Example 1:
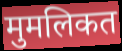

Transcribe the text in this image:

मुमलिकत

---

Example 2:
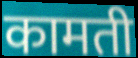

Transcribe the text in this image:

कामती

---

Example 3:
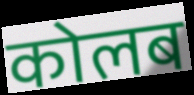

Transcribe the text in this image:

कोलब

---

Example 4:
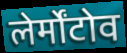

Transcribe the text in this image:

लेर्मोंटोव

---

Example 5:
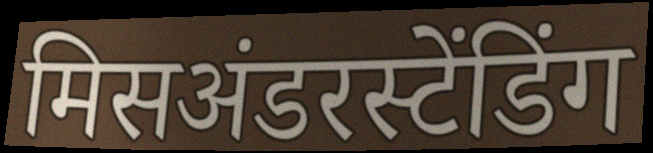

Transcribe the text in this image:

मिसअंडरस्टेंडिंग